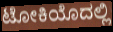
ಟೋಕಿಯೊದಲ್ಲಿ